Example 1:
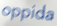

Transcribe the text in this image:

oppida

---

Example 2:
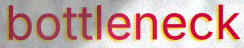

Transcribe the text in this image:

bottleneck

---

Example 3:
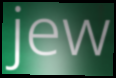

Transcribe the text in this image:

jew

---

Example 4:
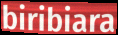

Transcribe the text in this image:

biribiara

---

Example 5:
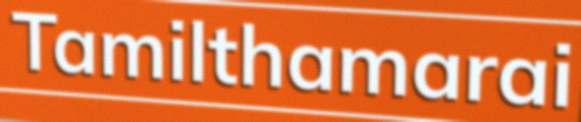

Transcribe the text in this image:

Tamilthamarai